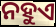
ନହୁଏ